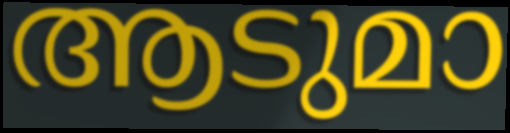
ആടുമാ